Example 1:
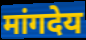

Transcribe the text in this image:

मांगदेय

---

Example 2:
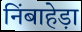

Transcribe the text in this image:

निंबाहेड़ा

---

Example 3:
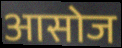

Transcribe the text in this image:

आसोज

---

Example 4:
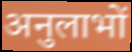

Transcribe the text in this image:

अनुलाभों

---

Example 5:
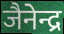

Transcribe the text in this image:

जैनेन्द्र